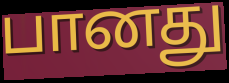
பானது